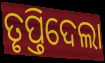
ତୃପ୍ତିଦେଲା